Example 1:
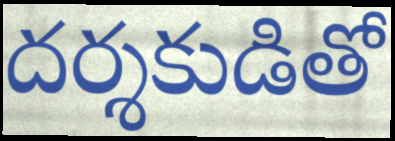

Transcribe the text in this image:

దర్శకుడితో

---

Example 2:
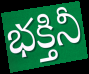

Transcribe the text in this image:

భక్తినీ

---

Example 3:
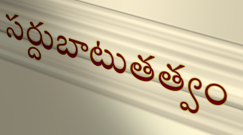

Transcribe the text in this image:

సర్దుబాటుతత్వం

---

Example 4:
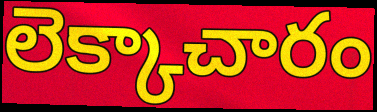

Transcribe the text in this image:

లెక్కాచారం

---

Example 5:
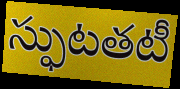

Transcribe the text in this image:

స్ఫుటతటీ